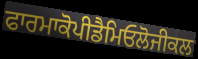
ਫਾਰਮਾਕੋਪੀਡੈਮਿਓਲੋਜੀਕਲ